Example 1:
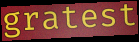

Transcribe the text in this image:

gratest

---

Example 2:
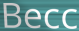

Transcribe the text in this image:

Becc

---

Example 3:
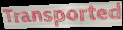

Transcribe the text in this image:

Transported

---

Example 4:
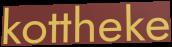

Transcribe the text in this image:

kottheke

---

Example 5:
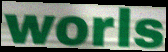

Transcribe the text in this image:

worls